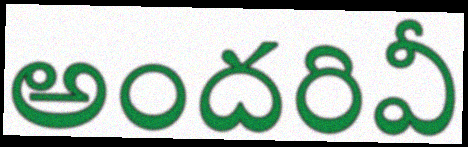
అందరివీ